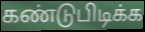
கண்டுபிடிக்க